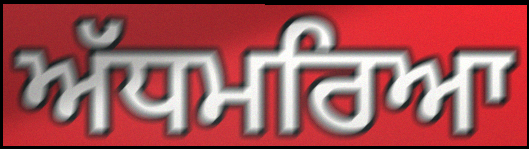
ਅੱਧਮਰਿਆ